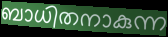
ബാധിതനാകുന്ന